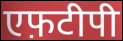
एफ़टीपी